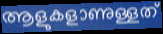
ആളുകളാണുള്ളത്